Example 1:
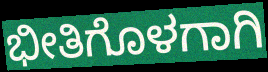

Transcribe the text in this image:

ಭೀತಿಗೊಳಗಾಗಿ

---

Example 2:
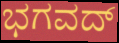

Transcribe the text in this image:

ಭಗವದ್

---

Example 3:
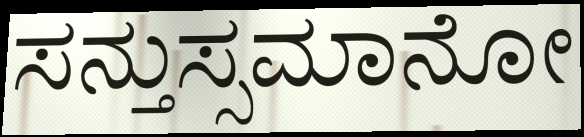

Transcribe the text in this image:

ಸನ್ತುಸ್ಸಮಾನೋ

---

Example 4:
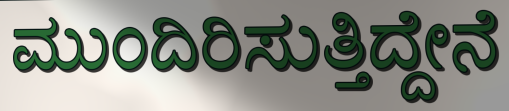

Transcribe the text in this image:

ಮುಂದಿರಿಸುತ್ತಿದ್ದೇನೆ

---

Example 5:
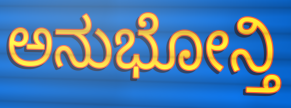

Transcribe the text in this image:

ಅನುಭೋನ್ತಿ